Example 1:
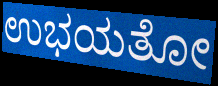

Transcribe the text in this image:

ಉಭಯತೋ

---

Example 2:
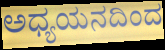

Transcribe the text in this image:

ಅಧ್ಯಯನದಿಂದ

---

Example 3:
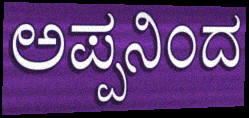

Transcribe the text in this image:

ಅಪ್ಪನಿಂದ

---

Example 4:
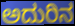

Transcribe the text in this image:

ಅದುರಿನ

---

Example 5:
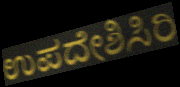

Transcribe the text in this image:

ಉಪದೇಶಿಸಿರಿ